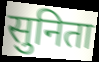
सुनिता